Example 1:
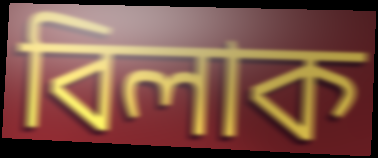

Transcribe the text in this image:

বিলাক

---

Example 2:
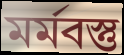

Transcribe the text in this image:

মৰ্মবস্তু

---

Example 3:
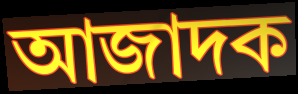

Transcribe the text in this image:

আজাদক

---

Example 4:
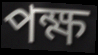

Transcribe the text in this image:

পক্ষ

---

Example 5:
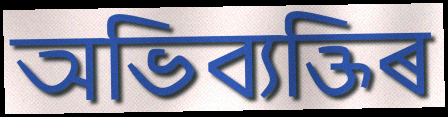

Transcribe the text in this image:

অভিব্যক্তিৰ